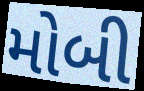
મોબી